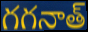
గగనాత్